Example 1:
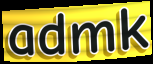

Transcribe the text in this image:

admk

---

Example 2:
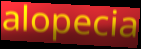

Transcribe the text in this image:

alopecia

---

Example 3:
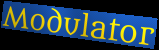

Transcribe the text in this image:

Modulator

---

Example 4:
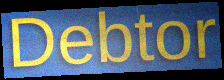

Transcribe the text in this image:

Debtor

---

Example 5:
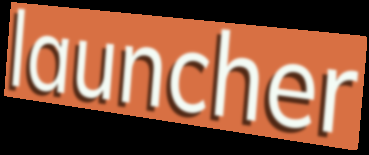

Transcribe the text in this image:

launcher